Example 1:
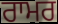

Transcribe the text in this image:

ਰਾਮਰ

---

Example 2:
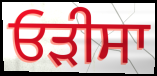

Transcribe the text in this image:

ਓੜੀਸਾ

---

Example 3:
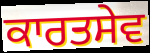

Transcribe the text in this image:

ਕਾਰਤਸੇਵ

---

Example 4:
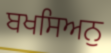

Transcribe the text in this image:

ਬਖਸਿਅਨੁ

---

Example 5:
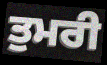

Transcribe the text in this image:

ਤੁਮਰੀ